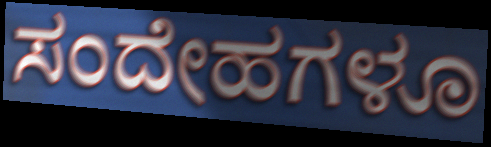
ಸಂದೇಹಗಳೂ